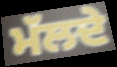
ਮੱਲਦੇ